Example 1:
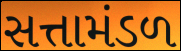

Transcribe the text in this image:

સત્તામંડળ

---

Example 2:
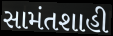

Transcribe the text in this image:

સામંતશાહી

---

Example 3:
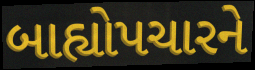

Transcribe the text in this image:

બાહ્યોપચારને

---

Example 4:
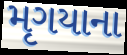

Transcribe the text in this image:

મૃગયાના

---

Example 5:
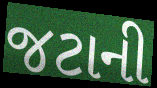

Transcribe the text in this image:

જટાની